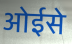
ओईसे